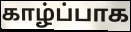
காழ்ப்பாக